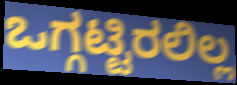
ಒಗ್ಗಟ್ಟಿರಲಿಲ್ಲ